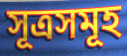
সূত্ৰসমূহ